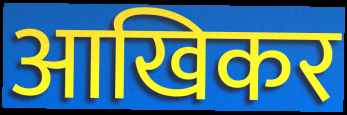
आखिकर